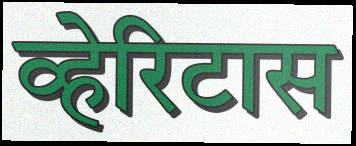
व्हेरिटास